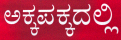
ಅಕ್ಕಪಕ್ಕದಲ್ಲಿ